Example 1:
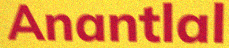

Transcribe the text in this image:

Anantlal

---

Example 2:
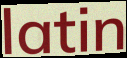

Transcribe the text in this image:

latin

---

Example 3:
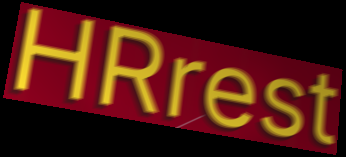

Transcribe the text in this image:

HRrest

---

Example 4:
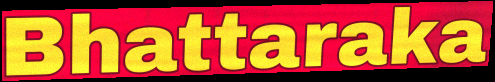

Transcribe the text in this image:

Bhattaraka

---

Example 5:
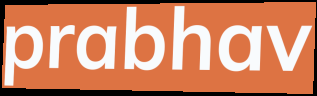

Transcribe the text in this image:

prabhav